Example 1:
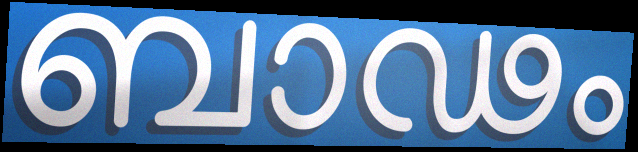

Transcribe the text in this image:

ബാഢം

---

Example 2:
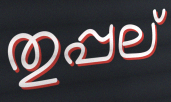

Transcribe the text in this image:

തുപ്പല്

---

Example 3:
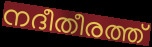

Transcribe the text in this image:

നദീതീരത്ത്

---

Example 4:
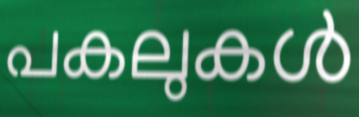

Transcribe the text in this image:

പകലുകൾ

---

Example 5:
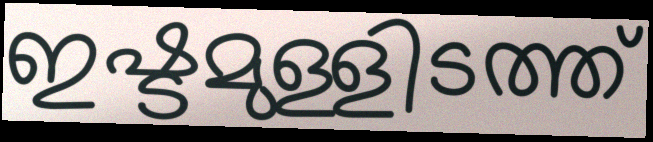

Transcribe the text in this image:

ഇഷ്ടമുള്ളിടത്ത്